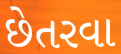
છેતરવા